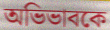
অভিভাবকে